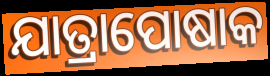
ଯାତ୍ରାପୋଷାକ